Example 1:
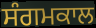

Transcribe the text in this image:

ਸੰਗਮਕਾਲ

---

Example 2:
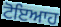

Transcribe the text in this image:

ਟੋਇਆਹ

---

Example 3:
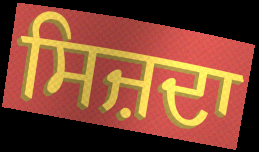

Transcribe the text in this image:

ਸਿਜ਼ਦਾ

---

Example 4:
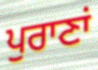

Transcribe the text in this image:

ਪੁਰਾਣਾਂ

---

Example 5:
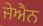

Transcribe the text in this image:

ਜੇਐਨ